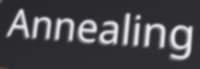
Annealing